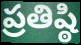
ప్రతిష్ఠి